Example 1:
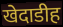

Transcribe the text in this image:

खेदाडीह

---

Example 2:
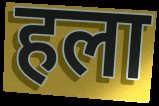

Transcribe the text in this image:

हला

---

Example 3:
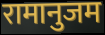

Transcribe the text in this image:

रामानुजम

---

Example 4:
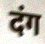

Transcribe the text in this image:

दंग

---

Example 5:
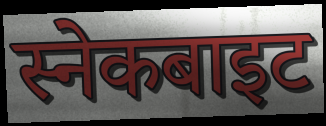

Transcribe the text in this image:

स्नेकबाइट